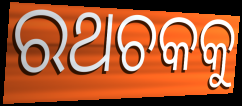
ରଥଚକକୁ